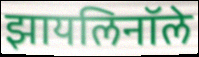
झायलिनॉले